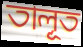
তালূত